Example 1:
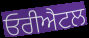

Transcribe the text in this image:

ਓਰੀਐਟਲ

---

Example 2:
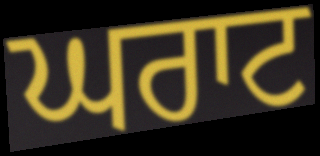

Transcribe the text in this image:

ਘਰਾਟ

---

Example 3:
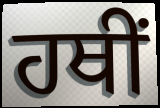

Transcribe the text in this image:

ਹਥੀਂ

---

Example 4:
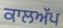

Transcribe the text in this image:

ਕਾਲਅੱਪ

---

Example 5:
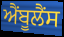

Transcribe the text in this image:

ਐੰਬੂਲੈੰਸ